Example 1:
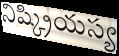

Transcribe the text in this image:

నిష్క్రియస్య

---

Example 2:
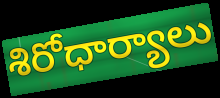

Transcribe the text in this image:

శిరోధార్యాలు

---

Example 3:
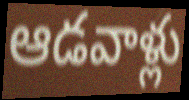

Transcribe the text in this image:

ఆడవాళ్లు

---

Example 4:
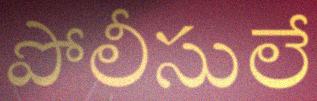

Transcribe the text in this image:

పోలీసులే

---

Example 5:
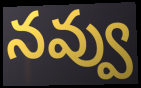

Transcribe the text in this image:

నవ్వు